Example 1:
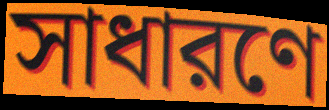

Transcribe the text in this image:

সাধারণে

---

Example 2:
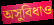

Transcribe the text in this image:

অসুবিধাও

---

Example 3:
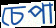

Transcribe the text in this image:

চেপা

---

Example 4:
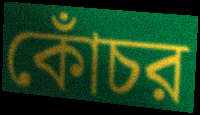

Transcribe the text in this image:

কোঁচর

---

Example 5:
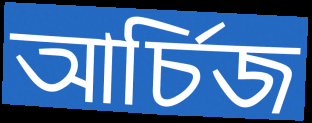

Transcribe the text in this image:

আর্চিজ